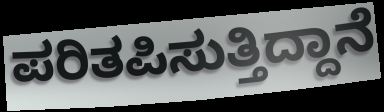
ಪರಿತಪಿಸುತ್ತಿದ್ದಾನೆ